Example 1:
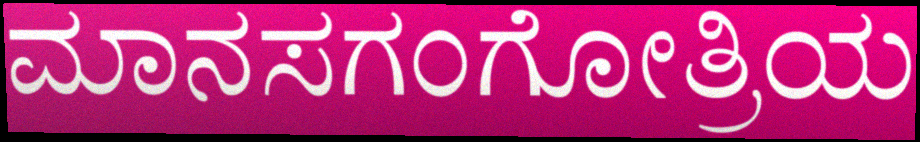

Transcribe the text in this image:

ಮಾನಸಗಂಗೋತ್ರಿಯ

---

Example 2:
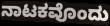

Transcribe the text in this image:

ನಾಟಕವೊಂದು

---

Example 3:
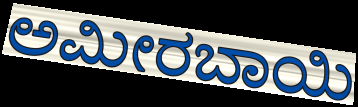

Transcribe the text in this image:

ಅಮೀರಬಾಯಿ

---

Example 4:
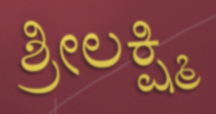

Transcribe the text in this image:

ಶ್ರೀಲಕ್ಷ್ಮಿ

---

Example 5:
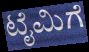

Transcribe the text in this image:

ಟೈಮಿಗೆ